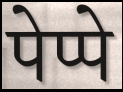
पेप्पे